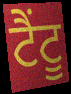
ਟੈਂਟੂ